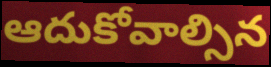
ఆదుకోవాల్సిన